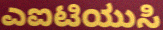
ಎಐಟಿಯುಸಿ